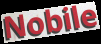
Nobile